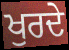
ਖੁਰਦੇ